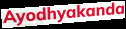
Ayodhyakanda